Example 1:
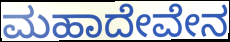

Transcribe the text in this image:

ಮಹಾದೇವೇನ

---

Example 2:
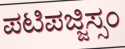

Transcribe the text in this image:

ಪಟಿಪಜ್ಜಿಸ್ಸಂ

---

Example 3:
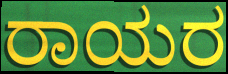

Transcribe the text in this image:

ರಾಯರ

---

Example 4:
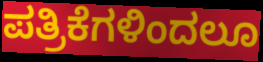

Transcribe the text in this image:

ಪತ್ರಿಕೆಗಳಿಂದಲೂ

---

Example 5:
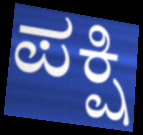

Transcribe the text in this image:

ಪಕ್ಷಿ